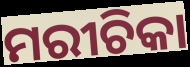
ମରୀଚିକା